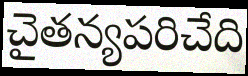
చైతన్యపరిచేది